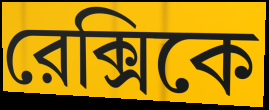
রেক্সিকে